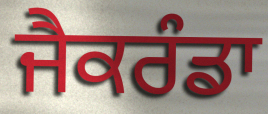
ਜੈਕਰੰਡਾ